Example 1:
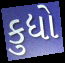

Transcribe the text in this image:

કુદ્યો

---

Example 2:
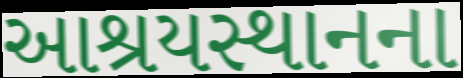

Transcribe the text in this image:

આશ્રયસ્થાનના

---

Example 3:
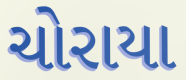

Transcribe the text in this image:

ચોરાયા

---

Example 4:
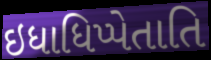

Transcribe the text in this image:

ઇધાધિપ્પેતાતિ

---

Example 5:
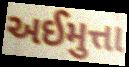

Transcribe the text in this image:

અઈમુત્તા